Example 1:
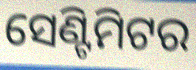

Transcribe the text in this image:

ସେଣ୍ଟିମିଟର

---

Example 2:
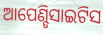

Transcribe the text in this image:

ଆପେଣ୍ଡିସାଇଟିସ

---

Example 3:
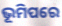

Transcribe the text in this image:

ଭୂମିପରେ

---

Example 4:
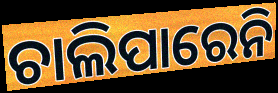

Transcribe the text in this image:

ଚାଲିପାରେନି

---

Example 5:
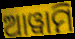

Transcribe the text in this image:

ଆୱାମି